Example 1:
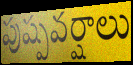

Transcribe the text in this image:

పుష్పవర్షాలు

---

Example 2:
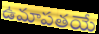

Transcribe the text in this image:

ఉమాపతయే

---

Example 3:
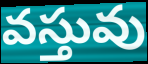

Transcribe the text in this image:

వస్తువు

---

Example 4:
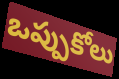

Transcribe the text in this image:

ఒప్పుకోలు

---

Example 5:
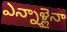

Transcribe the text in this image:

ఎన్నాళ్లైనా